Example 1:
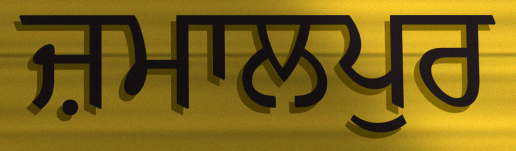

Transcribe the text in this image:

ਜ਼ਮਾਲਪੁਰ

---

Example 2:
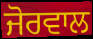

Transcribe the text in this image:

ਜੋਰਵਾਲ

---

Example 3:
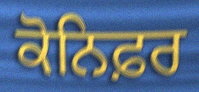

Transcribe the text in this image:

ਕੋਨਿਫ਼ਰ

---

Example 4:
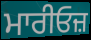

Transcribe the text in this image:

ਮਾਰੀਓਜ਼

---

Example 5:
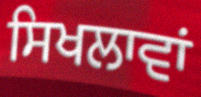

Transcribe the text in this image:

ਸਿਖਲਾਵਾਂ